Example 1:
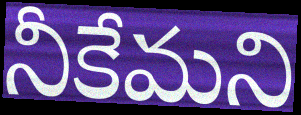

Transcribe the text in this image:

నీకేమని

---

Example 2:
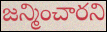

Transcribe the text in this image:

జన్మించారని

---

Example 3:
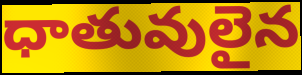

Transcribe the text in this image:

ధాతువులైన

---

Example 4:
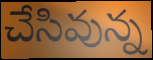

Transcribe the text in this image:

చేసివున్న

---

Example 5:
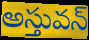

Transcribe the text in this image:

అస్తువన్